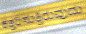
ಕತ್ತರಿಸುತ್ತಿರುವುದು